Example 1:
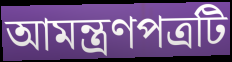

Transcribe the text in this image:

আমন্ত্রণপত্রটি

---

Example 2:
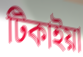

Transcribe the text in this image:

টিকাইয়া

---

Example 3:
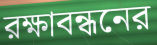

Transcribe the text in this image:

রক্ষাবন্ধনের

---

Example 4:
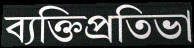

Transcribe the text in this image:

ব্যক্তিপ্রতিভা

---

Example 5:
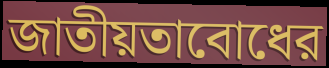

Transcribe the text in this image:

জাতীয়তাবোধের